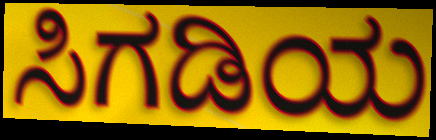
ಸಿಗಡಿಯ